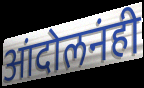
आंदोलनंही